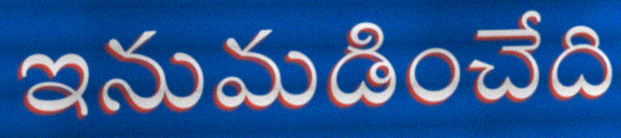
ఇనుమడించేది